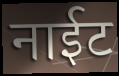
नाईट